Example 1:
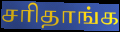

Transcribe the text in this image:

சரிதாங்க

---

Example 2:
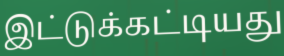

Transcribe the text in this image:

இட்டுக்கட்டியது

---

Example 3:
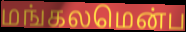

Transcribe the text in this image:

மங்கலமென்ப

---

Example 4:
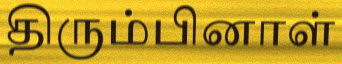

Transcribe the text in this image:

திரும்பினாள்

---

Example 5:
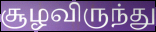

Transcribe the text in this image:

சூழவிருந்து